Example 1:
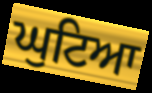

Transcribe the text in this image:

ਘੁਟਿਆ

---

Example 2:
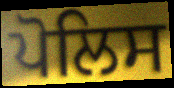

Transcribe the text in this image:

ਪੋਲਿਸ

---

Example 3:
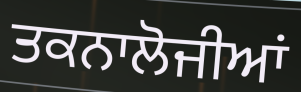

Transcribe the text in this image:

ਤਕਨਾਲੋਜੀਆਂ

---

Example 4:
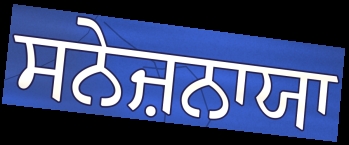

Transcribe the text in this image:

ਸਨੇਜ਼ਨਾਯਾ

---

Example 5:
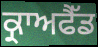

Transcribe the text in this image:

ਕ੍ਰਾਅਫੈੱਡ